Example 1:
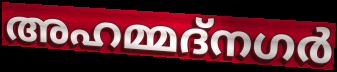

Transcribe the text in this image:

അഹമ്മദ്നഗർ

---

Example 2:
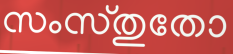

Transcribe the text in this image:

സംസ്തുതോ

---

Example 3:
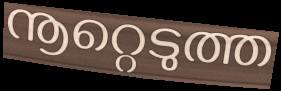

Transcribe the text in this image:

നൂറ്റെടുത്ത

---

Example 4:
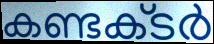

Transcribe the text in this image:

കണ്ടക്‌ടർ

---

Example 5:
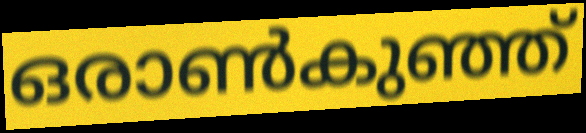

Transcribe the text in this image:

ഒരാൺകുഞ്ഞ്